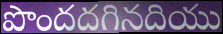
పొందదగినదియు